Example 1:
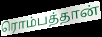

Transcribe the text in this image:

ரொம்பத்தான்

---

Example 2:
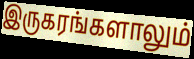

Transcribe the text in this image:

இருகரங்களாலும்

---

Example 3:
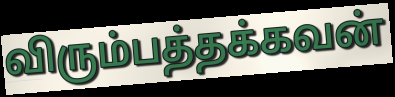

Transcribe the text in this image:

விரும்பத்தக்கவன்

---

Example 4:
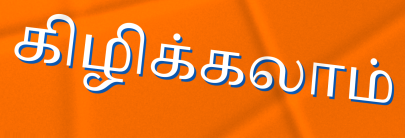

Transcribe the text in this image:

கிழிக்கலாம்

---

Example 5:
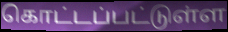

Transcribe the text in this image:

கொட்டப்பட்டுள்ள